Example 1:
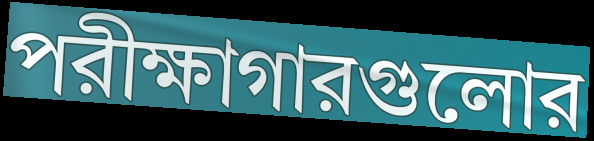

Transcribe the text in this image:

পরীক্ষাগারগুলোর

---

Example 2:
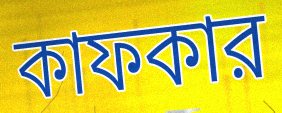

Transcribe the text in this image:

কাফকার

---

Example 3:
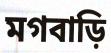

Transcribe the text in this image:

মগবাড়ি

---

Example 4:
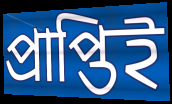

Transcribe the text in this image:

প্রাপ্তিই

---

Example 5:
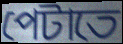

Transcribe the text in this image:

পেটাতে